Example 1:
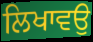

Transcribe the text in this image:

ਲਿਖਾਵਉ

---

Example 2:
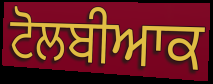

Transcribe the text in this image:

ਟੋਲਬੀਆਕ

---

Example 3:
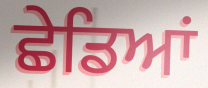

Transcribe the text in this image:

ਛੇਡਿਆਂ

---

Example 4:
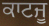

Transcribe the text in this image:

ਕਾਟਜੂ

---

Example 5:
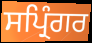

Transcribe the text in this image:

ਸਪ੍ਰਿੰਗਰ